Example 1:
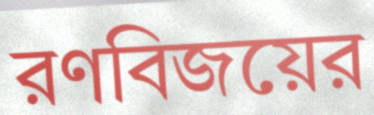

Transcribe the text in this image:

রণবিজয়ের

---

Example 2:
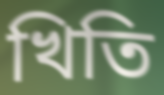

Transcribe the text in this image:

খিতি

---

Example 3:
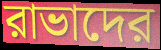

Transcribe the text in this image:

রাভাদের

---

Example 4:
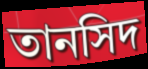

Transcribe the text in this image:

তানসিদ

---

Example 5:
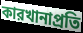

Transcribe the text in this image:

কারখানাপ্রতি